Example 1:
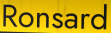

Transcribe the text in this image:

Ronsard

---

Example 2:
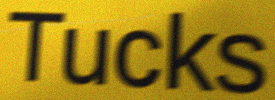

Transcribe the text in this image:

Tucks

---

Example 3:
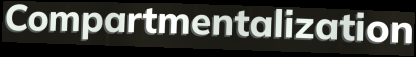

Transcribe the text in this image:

Compartmentalization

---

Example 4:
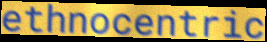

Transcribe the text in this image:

ethnocentric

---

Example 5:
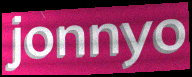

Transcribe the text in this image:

jonnyo